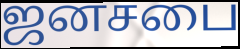
ஜனசபை